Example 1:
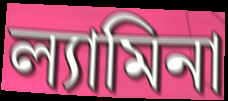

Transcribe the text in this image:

ল্যামিনা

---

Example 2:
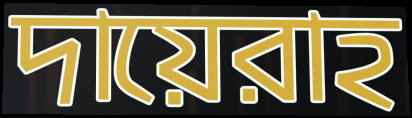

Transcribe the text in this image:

দায়েরাহ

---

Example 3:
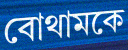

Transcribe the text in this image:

বোথামকে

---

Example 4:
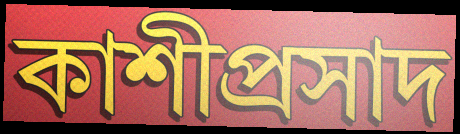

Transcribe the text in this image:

কাশীপ্রসাদ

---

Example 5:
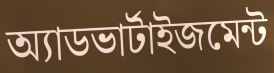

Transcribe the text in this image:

অ্যাডভার্টাইজমেন্ট